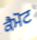
ਕੈਮੋਟ